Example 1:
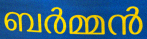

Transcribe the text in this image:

ബർമ്മൻ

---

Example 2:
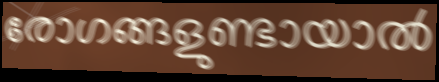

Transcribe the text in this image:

രോഗങ്ങളുണ്ടായാൽ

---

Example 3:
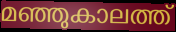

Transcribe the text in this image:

മഞ്ഞുകാലത്ത്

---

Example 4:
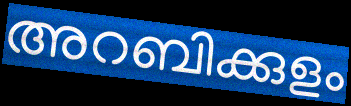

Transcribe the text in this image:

അറബിക്കുളം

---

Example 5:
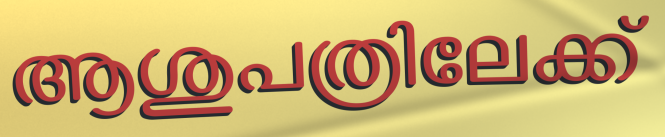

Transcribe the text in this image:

ആശുപത്രിലേക്ക്